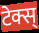
टेक्स्